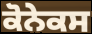
ਕੋਨੇਕਸ